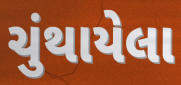
ચુંથાયેલા